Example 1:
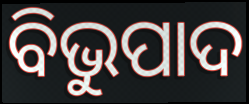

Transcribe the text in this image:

ବିଭୁପାଦ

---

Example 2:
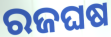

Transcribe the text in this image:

ରଜଘଷ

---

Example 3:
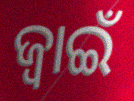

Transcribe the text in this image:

ଜ୍ଵାଇଁ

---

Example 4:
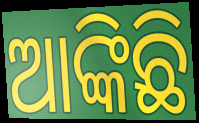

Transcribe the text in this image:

ଆଙ୍କିଛି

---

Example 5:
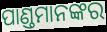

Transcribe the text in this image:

ପାଣ୍ଡମାନଙ୍କର